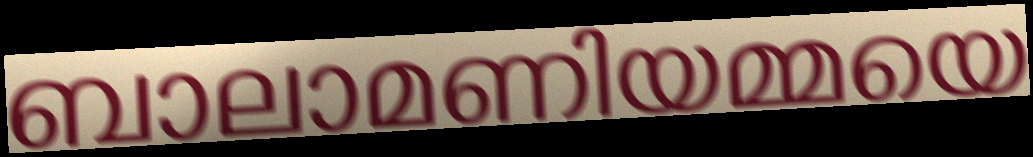
ബാലാമണിയമ്മയെ